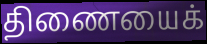
திணையைக்